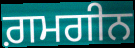
ਗ਼ਮਗੀਨ